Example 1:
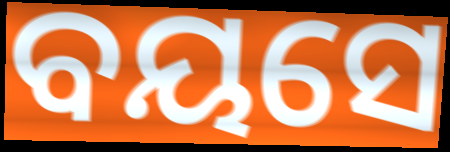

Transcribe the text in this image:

ବୟସେ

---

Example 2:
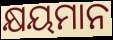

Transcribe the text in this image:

କ୍ଷୟମାନ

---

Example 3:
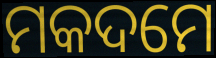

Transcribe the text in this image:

ମକଦମେ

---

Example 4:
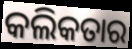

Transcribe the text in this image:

କଲିକତାର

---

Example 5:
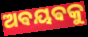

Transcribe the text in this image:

ଅଵୟଵକୁ